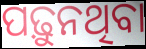
ପଢ଼ୁନଥିବା